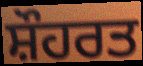
ਸ਼ੌਹਰਤ